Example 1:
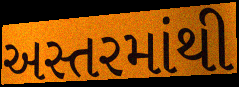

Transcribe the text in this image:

અસ્તરમાંથી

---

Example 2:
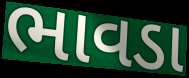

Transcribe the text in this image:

ભાવડા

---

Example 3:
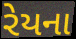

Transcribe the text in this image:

રેયના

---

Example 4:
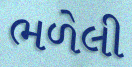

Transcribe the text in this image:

ભળેલી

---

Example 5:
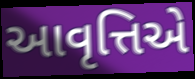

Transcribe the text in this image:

આવૃત્તિએ